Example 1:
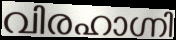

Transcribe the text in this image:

വിരഹാഗ്നി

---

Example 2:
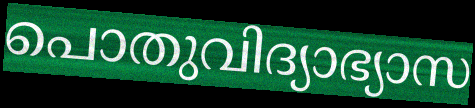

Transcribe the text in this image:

പൊതുവിദ്യാഭ്യാസ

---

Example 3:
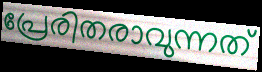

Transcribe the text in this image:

പ്രേരിതരാവുന്നത്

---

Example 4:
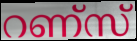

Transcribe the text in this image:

റണ്സ്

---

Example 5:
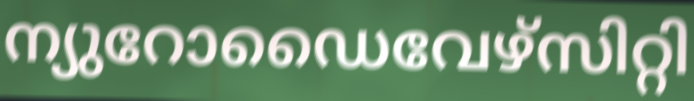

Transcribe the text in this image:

ന്യുറോഡൈവേഴ്സിറ്റി